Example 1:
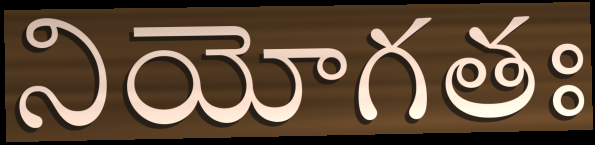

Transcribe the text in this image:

నియోగతః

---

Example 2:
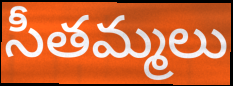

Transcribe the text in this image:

సీతమ్మలు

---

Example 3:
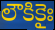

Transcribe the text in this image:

లౌకికైః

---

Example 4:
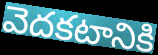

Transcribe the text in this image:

వెదకటానికి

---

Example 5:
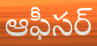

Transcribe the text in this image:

ఆఫీసర్